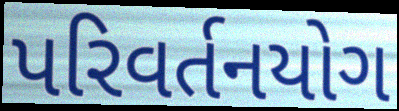
પરિવર્તનયોગ